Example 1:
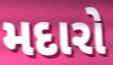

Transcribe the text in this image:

મદારો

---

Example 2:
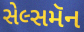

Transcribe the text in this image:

સેલ્સમૅન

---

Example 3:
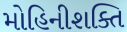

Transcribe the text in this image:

મોહિનીશક્તિ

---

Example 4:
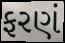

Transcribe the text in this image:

ફરણં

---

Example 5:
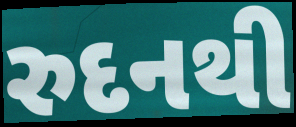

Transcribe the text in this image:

રુદનથી